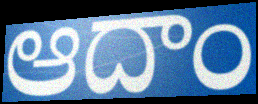
ఆదాం